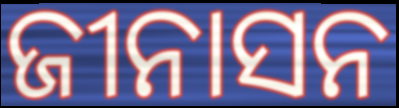
ଜୀନାସନ